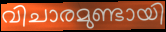
വിചാരമുണ്ടായി